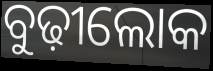
ବୁଢ଼ୀଲୋକ